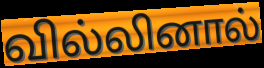
வில்லினால்